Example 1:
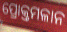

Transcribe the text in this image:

ପ୍ରୋକ୍ତମଳାନ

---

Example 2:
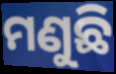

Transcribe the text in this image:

ମଣୁଛି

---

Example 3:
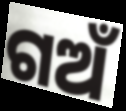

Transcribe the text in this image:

ଗଅଁ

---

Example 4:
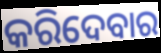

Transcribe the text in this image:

କରିଦେବାର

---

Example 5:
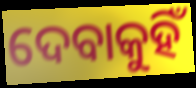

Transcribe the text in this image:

ଦେବାକୁହିଁ